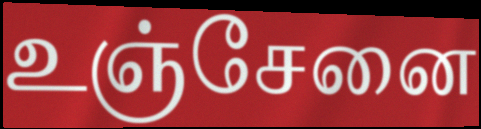
உஞ்சேனை